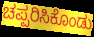
ಚಪ್ಪರಿಸಿಕೊಂಡು